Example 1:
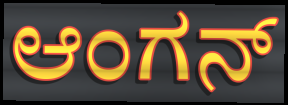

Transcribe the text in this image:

ಆಂಗನ್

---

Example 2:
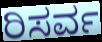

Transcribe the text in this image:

ರಿಸರ್ವ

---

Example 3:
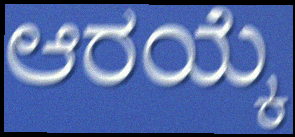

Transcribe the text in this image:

ಆರಯ್ಕೆ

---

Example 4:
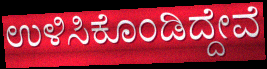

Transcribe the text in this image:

ಉಳಿಸಿಕೊಂಡಿದ್ದೇವೆ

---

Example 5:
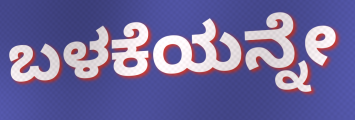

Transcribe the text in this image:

ಬಳಕೆಯನ್ನೇ